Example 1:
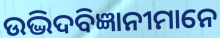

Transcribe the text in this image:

ଉଦ୍ଭିଦବିଜ୍ଞାନୀମାନେ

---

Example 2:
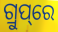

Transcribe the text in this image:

ଗ୍ରୁପ୍‌ରେ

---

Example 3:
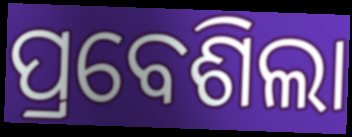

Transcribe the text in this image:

ପ୍ରବେଶିଲା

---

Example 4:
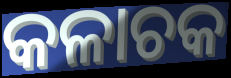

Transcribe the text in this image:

କଳାଚକ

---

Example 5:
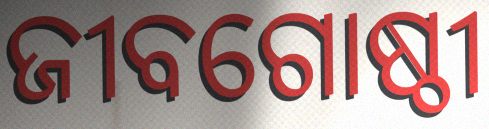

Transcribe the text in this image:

ଜୀବଗୋଷ୍ଠୀ